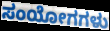
ಸಂಯೋಗಗಳು